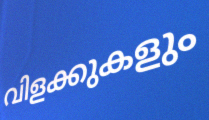
വിളക്കുകളും